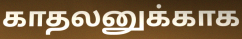
காதலனுக்காக